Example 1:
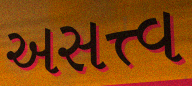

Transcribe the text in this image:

અસત્ત્વ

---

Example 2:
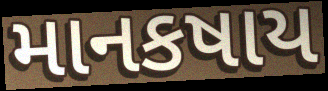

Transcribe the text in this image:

માનકષાય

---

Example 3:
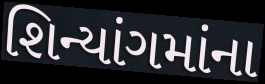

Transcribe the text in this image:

શિન્યાંગમાંના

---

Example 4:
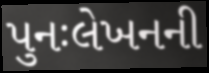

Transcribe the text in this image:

પુનઃલેખનની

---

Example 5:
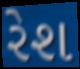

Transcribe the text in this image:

રેશ